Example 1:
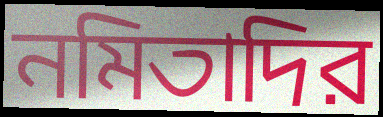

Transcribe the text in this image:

নমিতাদির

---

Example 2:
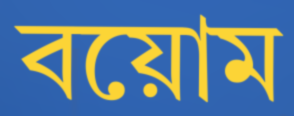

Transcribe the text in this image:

বয়োম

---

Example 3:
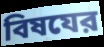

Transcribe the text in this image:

বিষযের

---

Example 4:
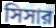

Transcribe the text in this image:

সিসার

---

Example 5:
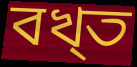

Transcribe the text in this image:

বখ্ত